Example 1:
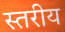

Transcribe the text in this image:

स्तरीय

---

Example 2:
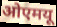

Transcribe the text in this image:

ओएमयू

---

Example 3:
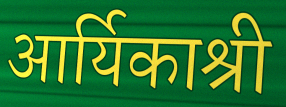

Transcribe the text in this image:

आर्यिकाश्री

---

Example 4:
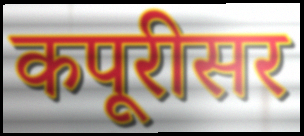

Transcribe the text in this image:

कपूरीसर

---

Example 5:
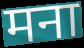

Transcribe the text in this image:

मना